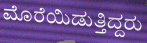
ಮೊರೆಯಿಡುತ್ತಿದ್ದರು